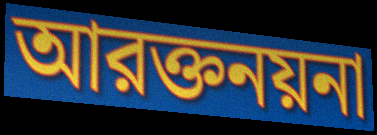
আরক্তনয়না